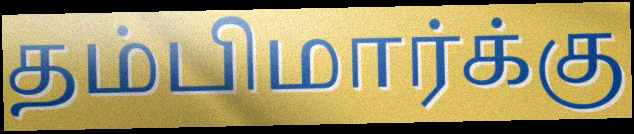
தம்பிமார்க்கு